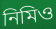
নিমিও